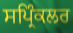
ਸਪ੍ਰਿੰਕਲਰ